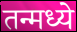
तन्मध्ये